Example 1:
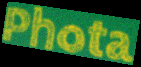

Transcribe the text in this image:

Phota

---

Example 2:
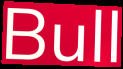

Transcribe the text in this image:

Bull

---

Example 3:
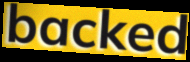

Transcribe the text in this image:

backed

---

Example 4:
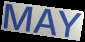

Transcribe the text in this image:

MAY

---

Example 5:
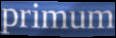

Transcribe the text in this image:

primum